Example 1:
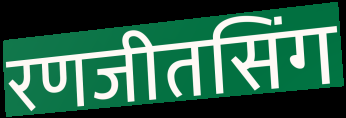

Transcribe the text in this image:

रणजीतसिंग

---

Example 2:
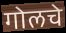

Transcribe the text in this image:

गोलचे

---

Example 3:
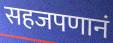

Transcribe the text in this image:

सहजपणानं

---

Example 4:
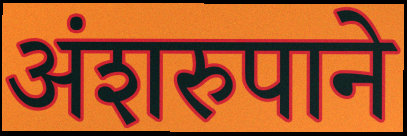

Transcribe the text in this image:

अंशरुपाने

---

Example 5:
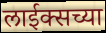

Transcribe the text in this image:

लाईक्सच्या